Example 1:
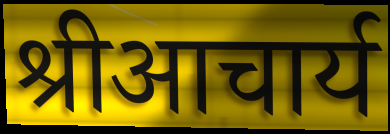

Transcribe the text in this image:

श्रीआचार्य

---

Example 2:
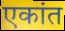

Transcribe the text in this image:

एकांत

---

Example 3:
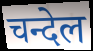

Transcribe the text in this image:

चन्देल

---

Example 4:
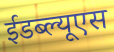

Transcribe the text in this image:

ईडब्ल्यूएस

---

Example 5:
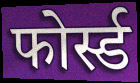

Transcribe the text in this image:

फोर्स्ड